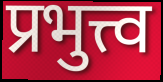
प्रभुत्त्व